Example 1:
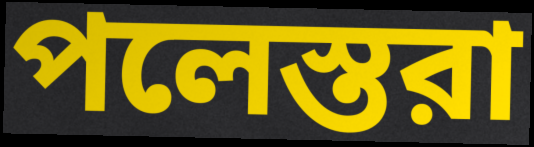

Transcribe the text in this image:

পলেস্তরা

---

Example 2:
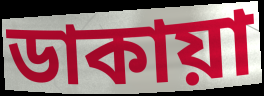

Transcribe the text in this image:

ডাকায়া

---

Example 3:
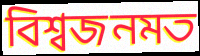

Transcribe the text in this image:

বিশ্বজনমত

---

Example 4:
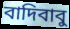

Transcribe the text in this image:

বাদিবাবু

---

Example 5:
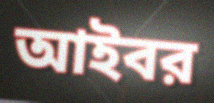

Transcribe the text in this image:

আইবর